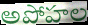
అపోహల